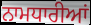
ਨਾਮਧਾਰੀਆਂ